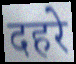
दहरे